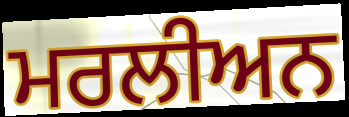
ਮਰਲੀਅਨ